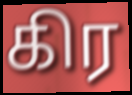
கிர